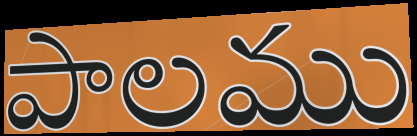
పాలము